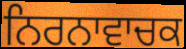
ਨਿਰਨਾਵਾਚਕ